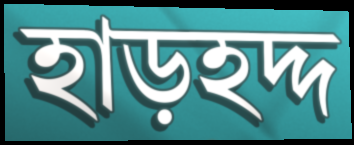
হাড়হদ্দ